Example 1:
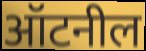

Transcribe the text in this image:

ऑटनील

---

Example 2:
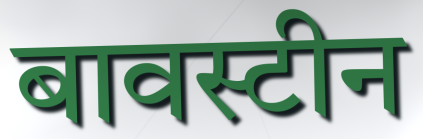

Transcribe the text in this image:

बावस्टीन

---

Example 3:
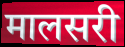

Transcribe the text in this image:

मालसरी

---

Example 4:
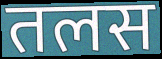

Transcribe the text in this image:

तलस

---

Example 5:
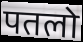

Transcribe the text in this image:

पतलो